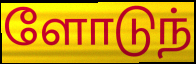
ளோடுந்